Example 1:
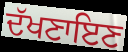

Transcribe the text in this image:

ਦੱਖਣਾਇਣ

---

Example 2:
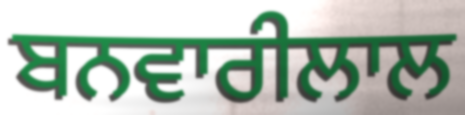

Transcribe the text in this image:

ਬਨਵਾਰੀਲਾਲ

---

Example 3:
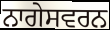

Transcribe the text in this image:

ਨਾਗੇਸਵਰਨ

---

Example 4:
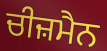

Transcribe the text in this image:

ਚੀਜ਼ਮੈਨ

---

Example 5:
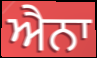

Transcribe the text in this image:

ਐਨਾ